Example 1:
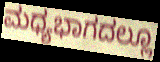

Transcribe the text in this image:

ಮಧ್ಯಭಾಗದಲ್ಲೂ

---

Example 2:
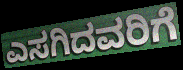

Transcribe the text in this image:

ಎಸಗಿದವರಿಗೆ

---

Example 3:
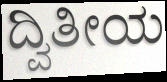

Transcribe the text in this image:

ದ್ವಿತೀಯ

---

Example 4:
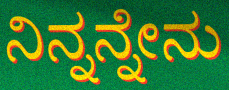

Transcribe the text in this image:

ನಿನ್ನನ್ನೇನು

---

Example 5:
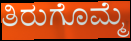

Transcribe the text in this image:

ತಿರುಗೊಮ್ಮೆ